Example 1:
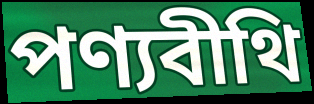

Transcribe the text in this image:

পণ্যবীথি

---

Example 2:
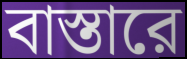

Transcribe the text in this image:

বাস্তারে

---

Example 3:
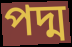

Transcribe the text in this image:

পদ্ম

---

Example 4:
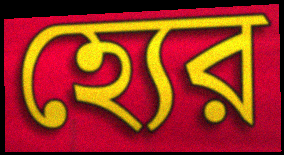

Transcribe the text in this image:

হ্যের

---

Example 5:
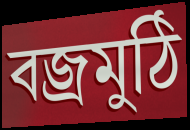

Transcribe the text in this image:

বজ্রমুঠি